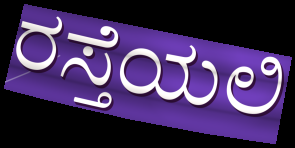
ರಸ್ತೆಯಲಿ